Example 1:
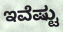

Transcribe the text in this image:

ಇವೆಷ್ಟು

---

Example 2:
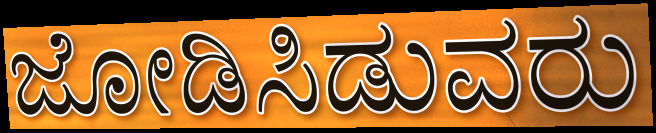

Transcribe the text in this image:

ಜೋಡಿಸಿಡುವರು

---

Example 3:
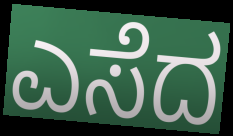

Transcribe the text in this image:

ಎಸೆದ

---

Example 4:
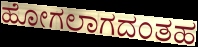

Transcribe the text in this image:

ಹೋಗಲಾಗದಂತಹ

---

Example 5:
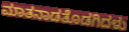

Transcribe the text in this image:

ಮಾತನಾಡತೊಡಗಿದಳು